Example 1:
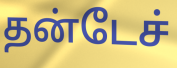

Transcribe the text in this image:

தன்டேச்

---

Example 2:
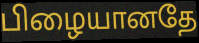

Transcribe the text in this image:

பிழையானதே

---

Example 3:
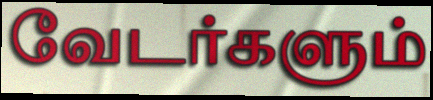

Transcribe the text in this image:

வேடர்களும்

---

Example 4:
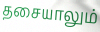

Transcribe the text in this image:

தசையாலும்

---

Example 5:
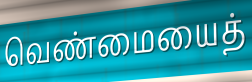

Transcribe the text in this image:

வெண்மையைத்